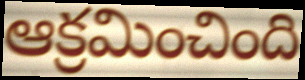
ఆక్రమించింది